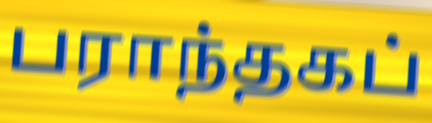
பராந்தகப்